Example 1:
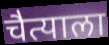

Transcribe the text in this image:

चैत्याला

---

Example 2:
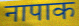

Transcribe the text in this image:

नापाक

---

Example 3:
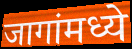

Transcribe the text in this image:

जागांमध्ये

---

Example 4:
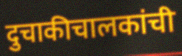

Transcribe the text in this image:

दुचाकीचालकांची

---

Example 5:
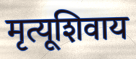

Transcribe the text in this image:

मृत्यूशिवाय